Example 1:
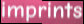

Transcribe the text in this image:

imprints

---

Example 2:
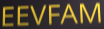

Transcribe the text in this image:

EEVFAM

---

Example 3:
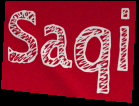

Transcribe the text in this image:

Saqi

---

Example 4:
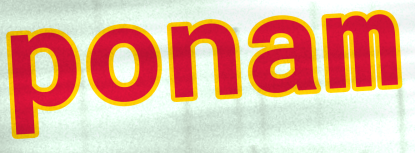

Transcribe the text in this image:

ponam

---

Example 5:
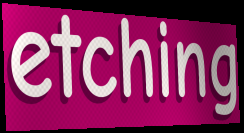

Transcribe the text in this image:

etching